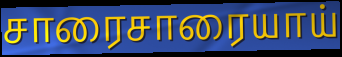
சாரைசாரையாய்